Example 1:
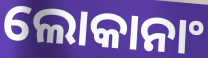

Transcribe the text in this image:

ଲୋକାନାଂ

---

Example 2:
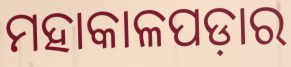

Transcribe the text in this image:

ମହାକାଳପଡ଼ାର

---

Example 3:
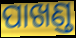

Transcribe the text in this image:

ପାଖଣ୍ଡ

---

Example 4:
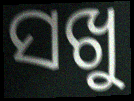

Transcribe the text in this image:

ସଖୁ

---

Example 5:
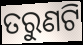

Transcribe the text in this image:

ତରୁଣଟି